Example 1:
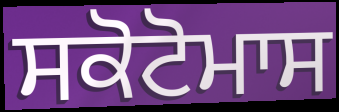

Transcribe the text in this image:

ਸਕੋਟੋਮਾਸ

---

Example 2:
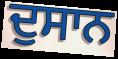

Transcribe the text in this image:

ਦੁਸਾਨ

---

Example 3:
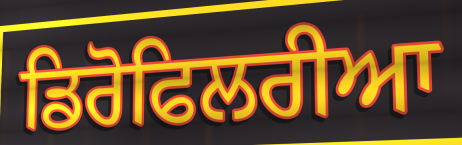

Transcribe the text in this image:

ਡਿਰੋਫਿਲਰੀਆ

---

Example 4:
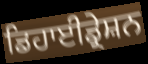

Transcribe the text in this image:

ਡਿਹਾਈਡ੍ਰੇਸ਼ਨ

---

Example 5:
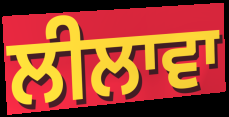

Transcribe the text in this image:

ਲੀਲਾਵਾ